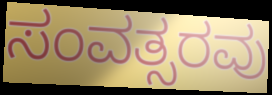
ಸಂವತ್ಸರವು